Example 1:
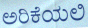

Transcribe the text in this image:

ಅರಿಕೆಯಲಿ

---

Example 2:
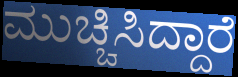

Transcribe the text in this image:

ಮುಚ್ಚಿಸಿದ್ದಾರೆ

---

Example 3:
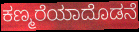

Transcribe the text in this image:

ಕಣ್ಮರೆಯಾದೊಡನೆ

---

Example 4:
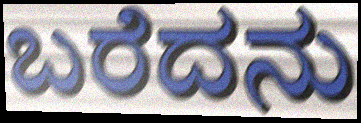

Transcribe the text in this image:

ಬರೆದನು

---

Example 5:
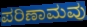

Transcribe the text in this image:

ಪರಿಣಾಮವು